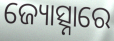
ଜ୍ୟୋତ୍ସ୍ନାରେ